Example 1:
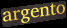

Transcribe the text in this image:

argento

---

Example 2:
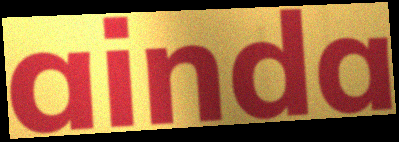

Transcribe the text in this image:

ainda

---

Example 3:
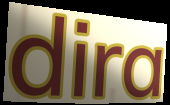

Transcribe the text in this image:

dira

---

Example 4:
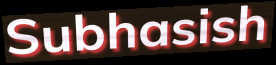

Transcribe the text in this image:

Subhasish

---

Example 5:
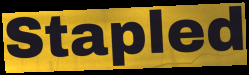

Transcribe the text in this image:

Stapled